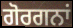
ਗੋਰਗਨਾਂ